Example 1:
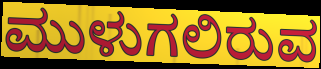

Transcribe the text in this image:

ಮುಳುಗಲಿರುವ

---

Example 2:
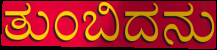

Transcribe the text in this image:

ತುಂಬಿದನು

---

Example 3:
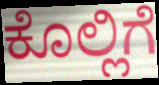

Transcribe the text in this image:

ಕೊಲ್ಲಿಗೆ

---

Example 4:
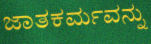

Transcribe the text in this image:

ಜಾತಕರ್ಮವನ್ನು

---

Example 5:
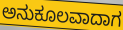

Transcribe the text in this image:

ಅನುಕೂಲವಾದಾಗ